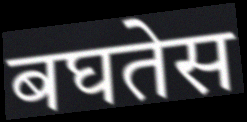
बघतेस